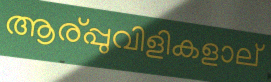
ആര്പ്പുവിളികളാല്